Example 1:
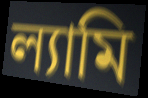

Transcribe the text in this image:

ল্যামি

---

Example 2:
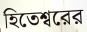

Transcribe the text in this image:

হিতেশ্বরের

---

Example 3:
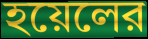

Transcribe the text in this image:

হয়েলের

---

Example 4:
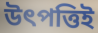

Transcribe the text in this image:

উৎপত্তিই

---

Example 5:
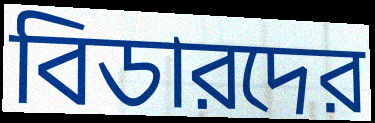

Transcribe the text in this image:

বিডারদের